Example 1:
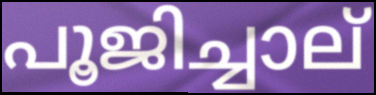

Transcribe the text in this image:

പൂജിച്ചാല്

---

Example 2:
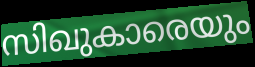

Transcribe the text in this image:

സിഖുകാരെയും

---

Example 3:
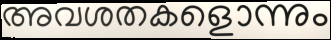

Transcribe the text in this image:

അവശതകളൊന്നും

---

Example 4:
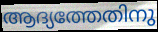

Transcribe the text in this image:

ആദ്യത്തേതിനു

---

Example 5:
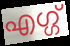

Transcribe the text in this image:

എഗ്ഗ്